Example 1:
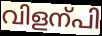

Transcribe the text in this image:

വിളന്പി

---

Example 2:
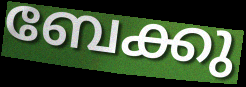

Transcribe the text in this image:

ബേക്കു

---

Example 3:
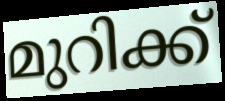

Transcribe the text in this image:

മുറിക്ക്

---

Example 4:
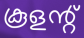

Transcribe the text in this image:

കൂളന്റ്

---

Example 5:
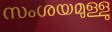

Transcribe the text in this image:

സംശയമുള്ളു